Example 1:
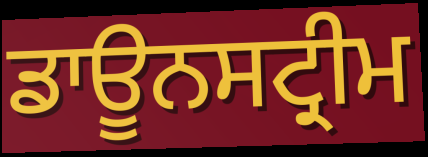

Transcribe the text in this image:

ਡਾਊਨਸਟ੍ਰੀਮ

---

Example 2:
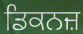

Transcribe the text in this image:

ਡਿਕਨਜ਼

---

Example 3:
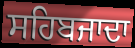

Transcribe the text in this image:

ਸਹਿਬਜਾਦਾ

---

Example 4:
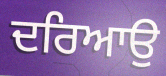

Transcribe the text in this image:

ਦਰਿਆਉ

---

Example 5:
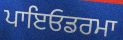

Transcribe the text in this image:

ਪਾਇਓਡਰਮਾ